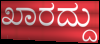
ಖಾರದ್ದು